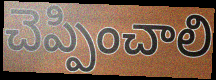
చెప్పించాలి